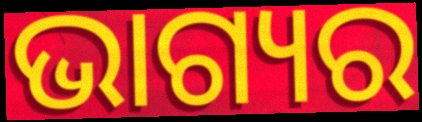
ଭାଗ୍ୟର